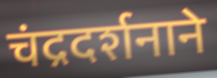
चंद्रदर्शनाने